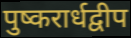
पुष्करार्धद्वीप